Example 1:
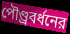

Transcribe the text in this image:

পৌণ্ড্রবর্ধনের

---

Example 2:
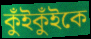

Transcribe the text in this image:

কুঁইকুঁইকে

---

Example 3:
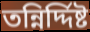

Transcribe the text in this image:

তন্নির্দ্দিষ্ট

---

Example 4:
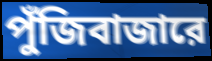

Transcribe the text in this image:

পুঁজিবাজারে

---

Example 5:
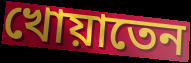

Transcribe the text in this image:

খোয়াতেন